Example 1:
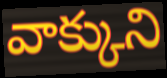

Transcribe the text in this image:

వాక్కుని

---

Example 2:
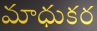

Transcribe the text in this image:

మాధుకర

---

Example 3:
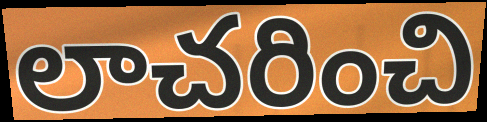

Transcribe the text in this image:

లాచరించి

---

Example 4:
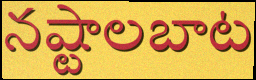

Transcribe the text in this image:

నష్టాలబాట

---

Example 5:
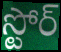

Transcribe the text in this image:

స్టోర్